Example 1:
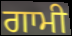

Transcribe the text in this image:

ਗਾਮੀ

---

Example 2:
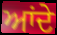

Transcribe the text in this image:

ਆਂਦੇ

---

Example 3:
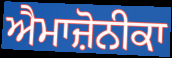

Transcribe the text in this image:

ਐਮਾਜ਼ੋਨੀਕਾ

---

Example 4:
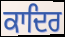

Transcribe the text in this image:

ਕਾਦਿਰ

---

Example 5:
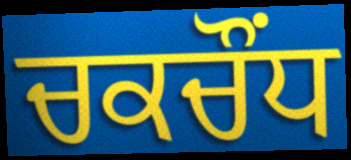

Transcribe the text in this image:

ਚਕਚੌਂਧ